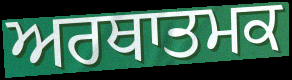
ਅਰਥਾਤਮਕ